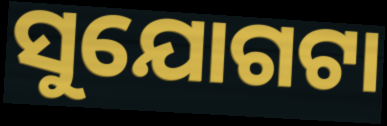
ସୁଯୋଗଟା